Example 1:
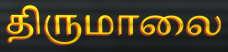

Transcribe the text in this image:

திருமாலை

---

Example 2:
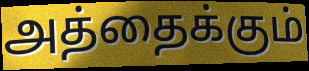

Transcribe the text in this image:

அத்தைக்கும்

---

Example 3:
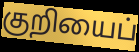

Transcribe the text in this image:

குறியைப்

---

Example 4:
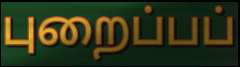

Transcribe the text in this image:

புறைப்பப்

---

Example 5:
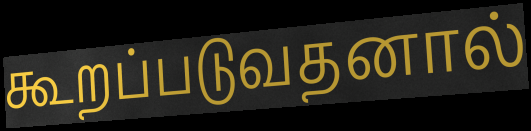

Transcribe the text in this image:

கூறப்படுவதனால்